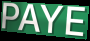
PAYE